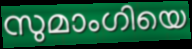
സുമാംഗിയെ